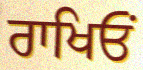
ਰਾਖਿਓਂ